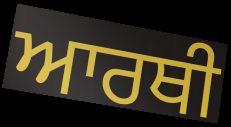
ਆਰਥੀ